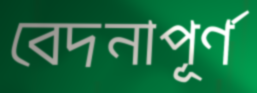
বেদনাপূর্ণ